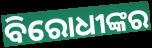
ବିରୋଧୀଙ୍କର